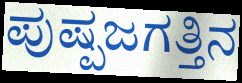
ಪುಷ್ಪಜಗತ್ತಿನ